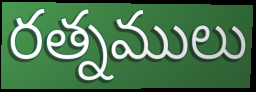
రత్నములు